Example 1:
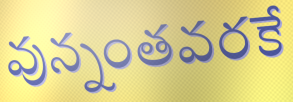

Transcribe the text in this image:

వున్నంతవరకే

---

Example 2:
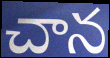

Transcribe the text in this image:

చాన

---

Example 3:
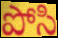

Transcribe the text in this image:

పోసి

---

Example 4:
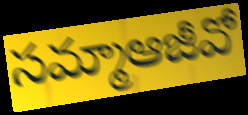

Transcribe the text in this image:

సమ్మాఆజీవో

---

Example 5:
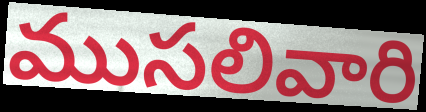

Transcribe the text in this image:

ముసలివారి